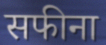
सफीना